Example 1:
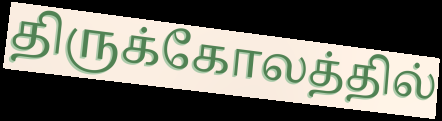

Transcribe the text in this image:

திருக்கோலத்தில்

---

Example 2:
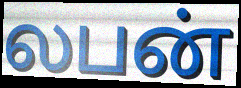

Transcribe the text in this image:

லபன்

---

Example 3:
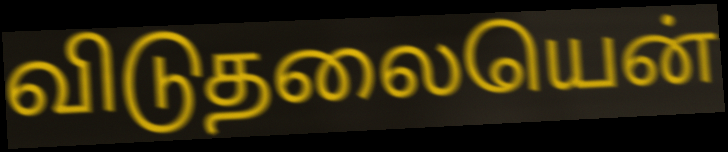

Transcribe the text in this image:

விடுதலையென்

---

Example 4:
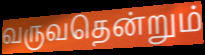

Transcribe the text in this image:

வருவதென்றும்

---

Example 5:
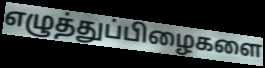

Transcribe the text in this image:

எழுத்துப்பிழைகளை